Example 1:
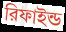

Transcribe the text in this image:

রিফাইন্ড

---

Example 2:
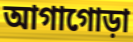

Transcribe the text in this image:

আগাগোড়া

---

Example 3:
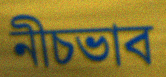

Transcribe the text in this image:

নীচভাব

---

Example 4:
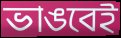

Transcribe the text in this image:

ভাঙবেই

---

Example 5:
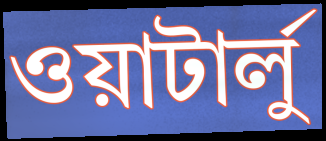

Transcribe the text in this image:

ওয়াটার্লু